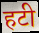
हटी